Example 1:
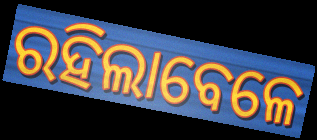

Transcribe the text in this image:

ରହିଲାବେଳେ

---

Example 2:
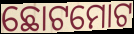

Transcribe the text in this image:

ଛୋଟମୋଟ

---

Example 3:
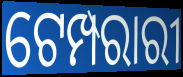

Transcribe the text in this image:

ଟେମ୍ପରାରୀ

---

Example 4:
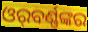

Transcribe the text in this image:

ଓର୍‌ବର୍ଣ୍ଣଙ୍କର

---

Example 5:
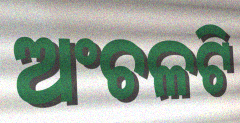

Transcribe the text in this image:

ଅଂଚଳଟି